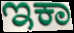
ಇಕಾ